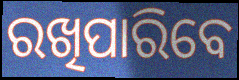
ରଖିପାରିବେ